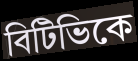
বিটিভিকে